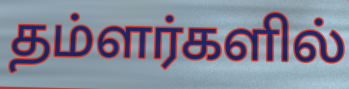
தம்ளர்களில்